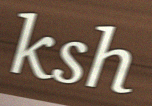
ksh